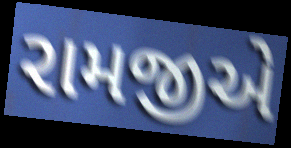
રામજીએ